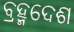
ବ୍ରହ୍ମଦେଶ